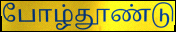
போழ்தூண்டு